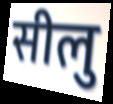
सीलु